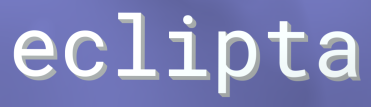
eclipta